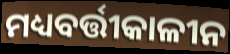
ମଧ୍ୟବର୍ତ୍ତୀକାଳୀନ